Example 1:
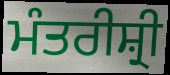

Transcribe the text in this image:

ਮੰਤਰੀਸ਼੍ਰੀ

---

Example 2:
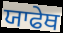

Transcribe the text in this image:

ਯਾਫੇਥ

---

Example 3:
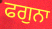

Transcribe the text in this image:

ਫਗੁਨਾ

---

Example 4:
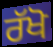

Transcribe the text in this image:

ਰੱਖੋ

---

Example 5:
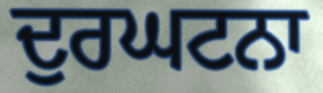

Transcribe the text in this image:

ਦੁਰਘਟਨਾ